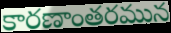
కారణాంతరమున